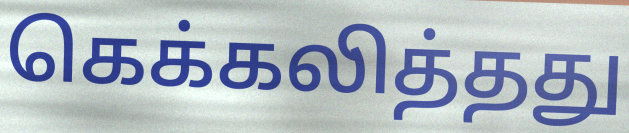
கெக்கலித்தது